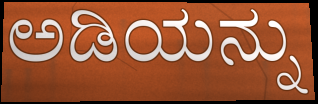
ಅಡಿಯನ್ನು